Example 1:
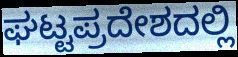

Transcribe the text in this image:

ಘಟ್ಟಪ್ರದೇಶದಲ್ಲಿ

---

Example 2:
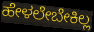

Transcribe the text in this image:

ಹೇಳಲೇಬೇಕಿಲ್ಲ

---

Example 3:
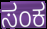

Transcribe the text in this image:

ಸಂಕ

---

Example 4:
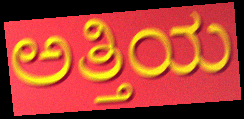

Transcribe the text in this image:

ಅತ್ತಿಯ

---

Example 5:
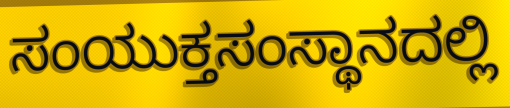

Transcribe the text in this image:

ಸಂಯುಕ್ತಸಂಸ್ಥಾನದಲ್ಲಿ